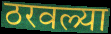
ठरवल्या